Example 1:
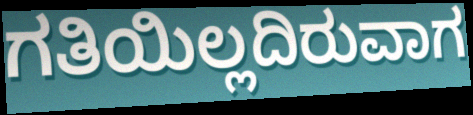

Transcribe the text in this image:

ಗತಿಯಿಲ್ಲದಿರುವಾಗ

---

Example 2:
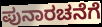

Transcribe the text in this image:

ಪುನಾರಚನೆಗೆ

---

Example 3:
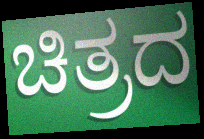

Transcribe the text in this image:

ಚಿತ್ರದ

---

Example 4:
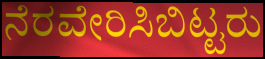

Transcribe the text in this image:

ನೆರವೇರಿಸಿಬಿಟ್ಟರು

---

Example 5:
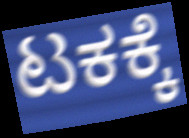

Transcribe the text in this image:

ಟಕಕ್ಕೆ